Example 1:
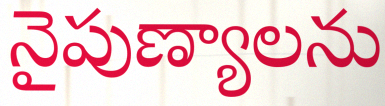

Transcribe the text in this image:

నైపుణ్యాలను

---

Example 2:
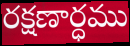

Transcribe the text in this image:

రక్షణార్ధము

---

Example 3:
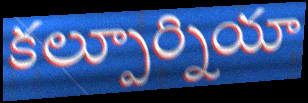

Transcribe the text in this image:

కల్పూర్నియా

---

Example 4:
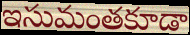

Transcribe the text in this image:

ఇసుమంతకూడా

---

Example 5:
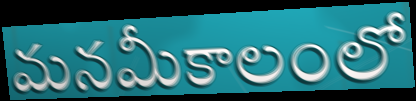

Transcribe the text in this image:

మనమీకాలంలో